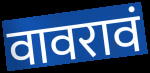
वावरावं